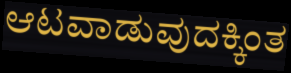
ಆಟವಾಡುವುದಕ್ಕಿಂತ